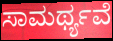
ಸಾಮರ್ಥ್ಯವೆ